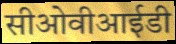
सीओवीआईडी